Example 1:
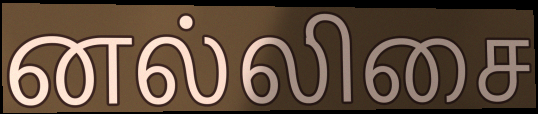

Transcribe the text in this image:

னல்லிசை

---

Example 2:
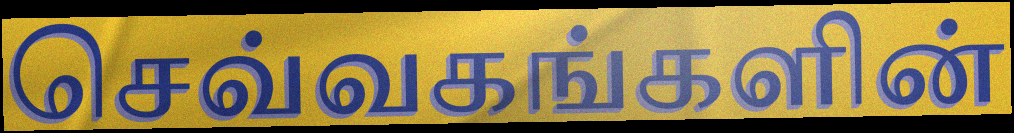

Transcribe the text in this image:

செவ்வகங்களின்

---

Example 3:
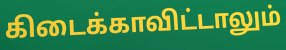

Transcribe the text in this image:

கிடைக்காவிட்டாலும்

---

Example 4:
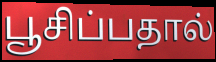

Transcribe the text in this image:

பூசிப்பதால்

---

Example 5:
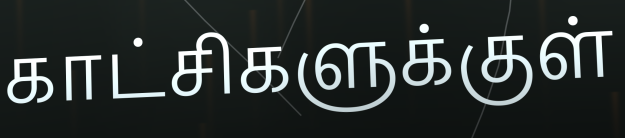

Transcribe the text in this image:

காட்சிகளுக்குள்